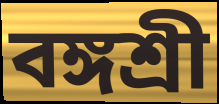
বঙ্গশ্রী